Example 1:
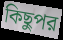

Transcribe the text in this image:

কিছুপর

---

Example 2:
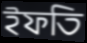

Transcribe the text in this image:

ইফতি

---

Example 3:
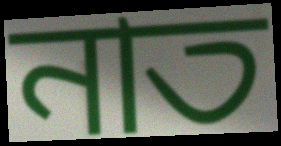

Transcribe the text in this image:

নাত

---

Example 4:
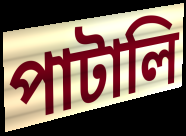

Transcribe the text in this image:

পাটালি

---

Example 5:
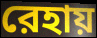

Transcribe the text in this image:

রেহায়